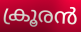
ക്രൂരൻ